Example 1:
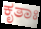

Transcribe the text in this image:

ಕೃತಾಃ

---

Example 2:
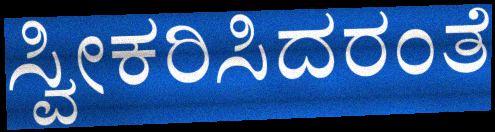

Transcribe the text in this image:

ಸ್ವೀಕರಿಸಿದರಂತೆ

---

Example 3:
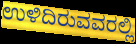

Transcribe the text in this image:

ಉಳಿದಿರುವವರಲ್ಲಿ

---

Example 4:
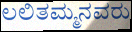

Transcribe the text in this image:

ಲಲಿತಮ್ಮನವರು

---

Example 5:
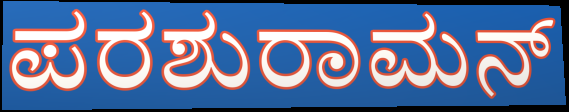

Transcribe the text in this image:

ಪರಶುರಾಮನ್